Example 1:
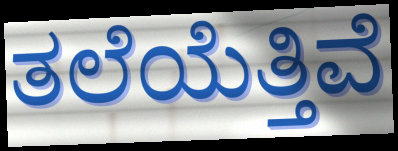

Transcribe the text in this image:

ತಲೆಯೆತ್ತಿವೆ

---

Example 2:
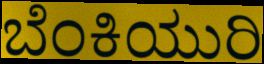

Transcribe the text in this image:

ಬೆಂಕಿಯುರಿ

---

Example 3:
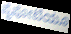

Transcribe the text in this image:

ಪೈಪೋಟಿಯೂ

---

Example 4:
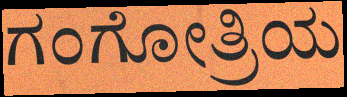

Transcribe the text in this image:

ಗಂಗೋತ್ರಿಯ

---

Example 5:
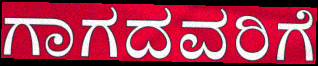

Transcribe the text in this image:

ಗಾಗದವರಿಗೆ